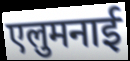
एलुमनाई